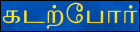
கடற்போர்